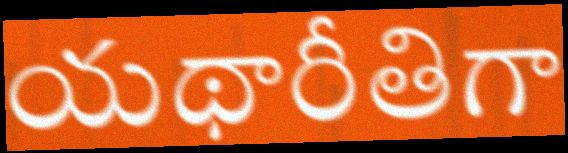
యథారీతిగా